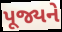
પૂજ્યને